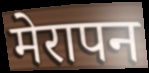
मेरापन